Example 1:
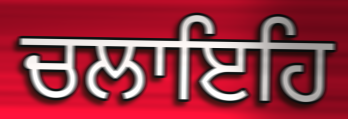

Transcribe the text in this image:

ਚਲਾਇਹਿ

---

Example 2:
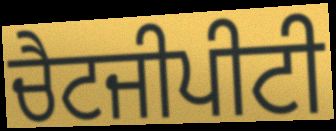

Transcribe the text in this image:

ਚੈਟਜੀਪੀਟੀ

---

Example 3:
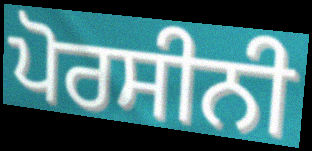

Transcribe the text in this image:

ਪੋਰਸੀਨੀ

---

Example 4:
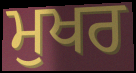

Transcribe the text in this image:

ਮੁਖਰ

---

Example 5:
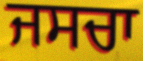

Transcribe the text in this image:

ਜਸਚਾ